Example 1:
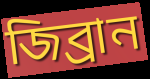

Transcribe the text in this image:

জিব্রান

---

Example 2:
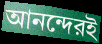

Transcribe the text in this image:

আনন্দেরই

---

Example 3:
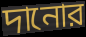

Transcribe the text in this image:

দানোর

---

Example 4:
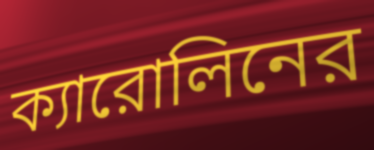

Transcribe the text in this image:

ক্যারোলিনের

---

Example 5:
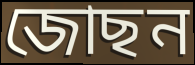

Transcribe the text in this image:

জোছন